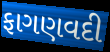
ફાગણવદી